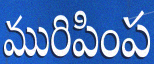
మురిపింప